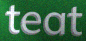
teat